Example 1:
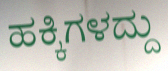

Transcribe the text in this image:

ಹಕ್ಕಿಗಳದ್ದು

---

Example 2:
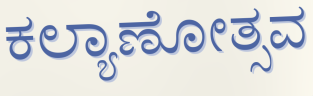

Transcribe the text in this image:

ಕಲ್ಯಾಣೋತ್ಸವ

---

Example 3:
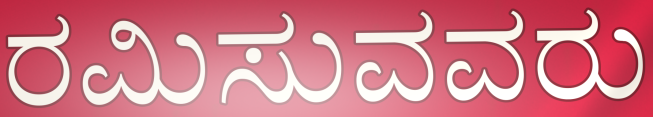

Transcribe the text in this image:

ರಮಿಸುವವರು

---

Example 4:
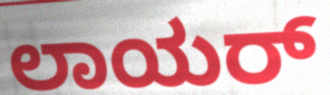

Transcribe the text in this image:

ಲಾಯರ್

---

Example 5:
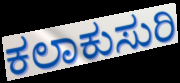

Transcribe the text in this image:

ಕಲಾಕುಸುರಿ